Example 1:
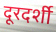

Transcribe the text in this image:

दूरदर्शी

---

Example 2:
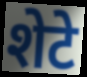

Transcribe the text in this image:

शेटे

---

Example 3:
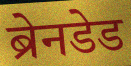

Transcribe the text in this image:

ब्रेनडेड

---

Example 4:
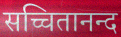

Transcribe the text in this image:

सच्चितानन्द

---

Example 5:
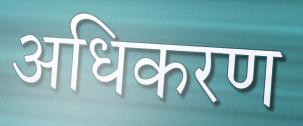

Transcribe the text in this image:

अधिकरण